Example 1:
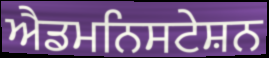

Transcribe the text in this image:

ਐਡਮਨਿਸਟੇਸ਼ਨ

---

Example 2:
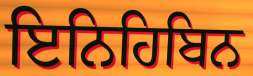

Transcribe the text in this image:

ਇਨਿਹਿਬਿਨ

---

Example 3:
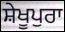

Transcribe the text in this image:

ਸ਼ੇਖੂਪੁਰਾ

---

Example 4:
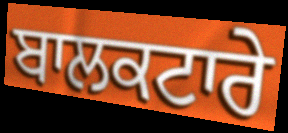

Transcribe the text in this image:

ਬਾਲਕਟਾਰੇ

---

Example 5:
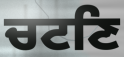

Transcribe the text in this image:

ਚਟਣਿ